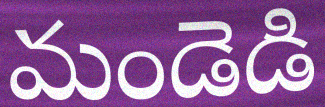
మండెడి